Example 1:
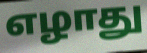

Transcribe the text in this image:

எழாது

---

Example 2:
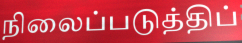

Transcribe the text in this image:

நிலைப்படுத்திப்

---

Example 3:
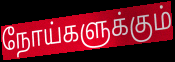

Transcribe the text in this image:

நோய்களுக்கும்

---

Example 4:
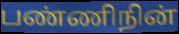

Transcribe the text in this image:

பண்ணிநின்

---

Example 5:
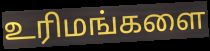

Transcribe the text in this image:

உரிமங்களை